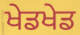
ਖੇਡਖੇਡ